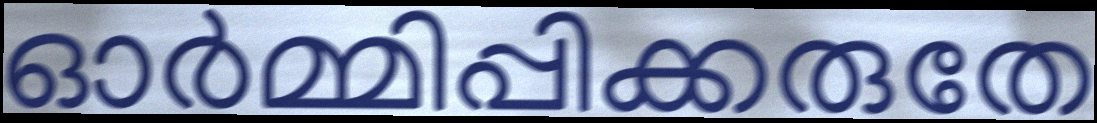
ഓർമ്മിപ്പിക്കരുതേ